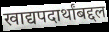
खाद्यपदार्थांबद्दल